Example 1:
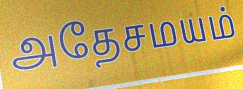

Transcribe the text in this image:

அதேசமயம்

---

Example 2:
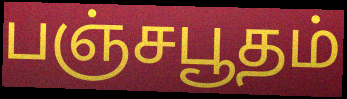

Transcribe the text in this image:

பஞ்சபூதம்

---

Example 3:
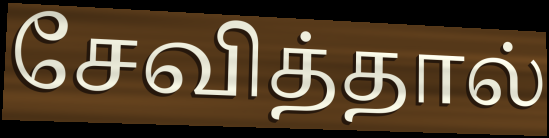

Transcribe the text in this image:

சேவித்தால்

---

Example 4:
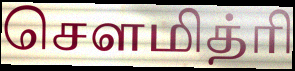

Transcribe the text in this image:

சௌமித்ரி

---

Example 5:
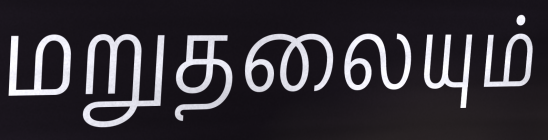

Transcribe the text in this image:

மறுதலையும்